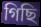
গিছি